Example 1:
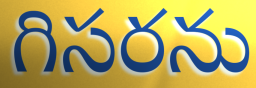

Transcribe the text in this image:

గిసరను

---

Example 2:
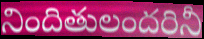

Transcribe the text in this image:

నిందితులందరినీ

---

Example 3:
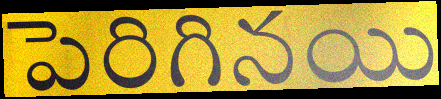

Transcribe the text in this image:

పెరిగినయి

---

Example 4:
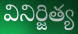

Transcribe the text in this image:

వినిర్జిత్య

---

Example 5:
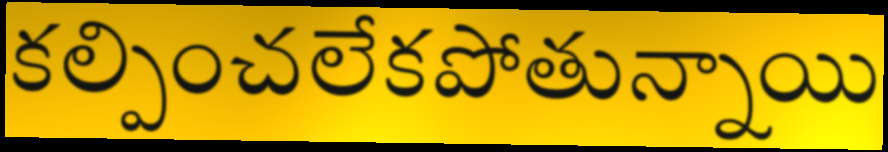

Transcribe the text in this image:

కల్పించలేకపోతున్నాయి